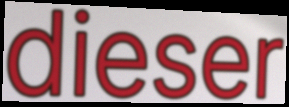
dieser